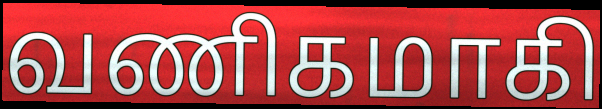
வணிகமாகி